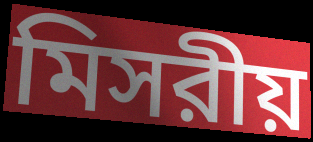
মিসরীয়